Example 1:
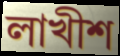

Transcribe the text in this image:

লাখীশ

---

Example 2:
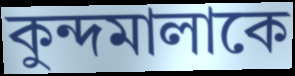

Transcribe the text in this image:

কুন্দমালাকে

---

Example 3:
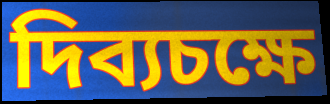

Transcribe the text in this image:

দিব্যচক্ষে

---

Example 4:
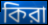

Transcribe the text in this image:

কিরা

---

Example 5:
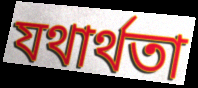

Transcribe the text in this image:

যথার্থতা